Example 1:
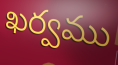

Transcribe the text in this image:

ఖర్వము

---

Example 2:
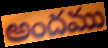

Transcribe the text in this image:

అందము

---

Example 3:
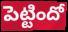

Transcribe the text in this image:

పెట్టిందో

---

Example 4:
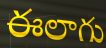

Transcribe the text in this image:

ఈలాగు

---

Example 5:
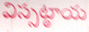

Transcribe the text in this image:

విస్సట్ఠాయ